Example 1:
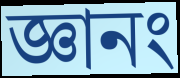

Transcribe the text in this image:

জ্ঞানং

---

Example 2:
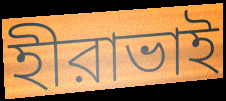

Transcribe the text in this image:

হীরাভাই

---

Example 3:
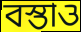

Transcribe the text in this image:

বস্তাও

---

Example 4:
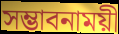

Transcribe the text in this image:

সম্ভাবনাময়ী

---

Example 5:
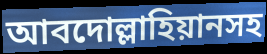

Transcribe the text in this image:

আবদোল্লাহিয়ানসহ